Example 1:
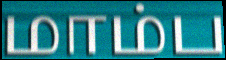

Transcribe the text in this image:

மாம்ப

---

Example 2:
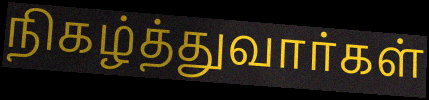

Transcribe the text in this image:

நிகழ்த்துவார்கள்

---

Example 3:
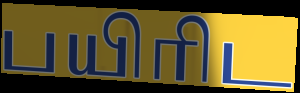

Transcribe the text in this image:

பயிரிட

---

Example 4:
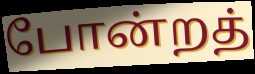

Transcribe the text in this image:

போன்றத்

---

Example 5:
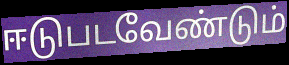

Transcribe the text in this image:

ஈடுபடவேண்டும்